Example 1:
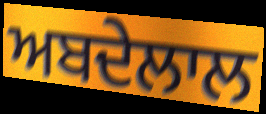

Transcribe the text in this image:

ਅਬਦੇਲਾਲ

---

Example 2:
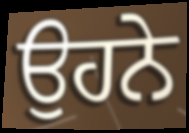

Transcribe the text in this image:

ਉਹਨੇ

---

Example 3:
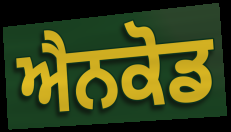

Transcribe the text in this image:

ਐਨਕੋਡ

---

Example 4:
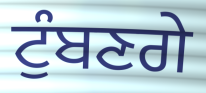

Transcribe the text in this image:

ਟੁੰਬਣਗੇ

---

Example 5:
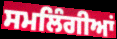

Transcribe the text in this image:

ਸਮਲਿੰਗੀਆਂ